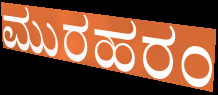
ಮುರಹರಂ